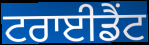
ਟਰਾਈਡੈਂਟ